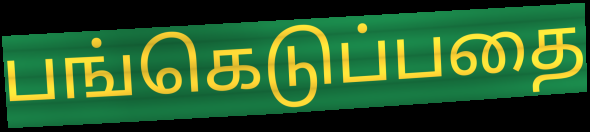
பங்கெடுப்பதை